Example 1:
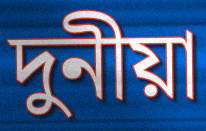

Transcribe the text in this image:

দুনীয়া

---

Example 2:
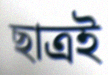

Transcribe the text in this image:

ছাত্ৰই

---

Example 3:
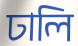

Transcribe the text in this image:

ঢালি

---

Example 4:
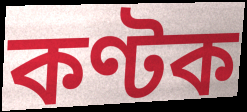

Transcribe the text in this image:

কণ্টক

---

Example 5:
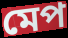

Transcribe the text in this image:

মেপ